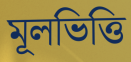
মূলভিত্তি